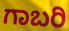
ಗಾಬರಿ